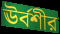
ঊর্বশীর